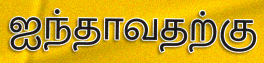
ஐந்தாவதற்கு